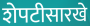
शेपटीसारखे